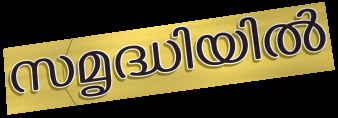
സമൃദ്ധിയിൽ